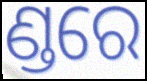
ଣ୍ଡରେ